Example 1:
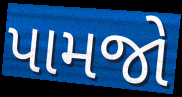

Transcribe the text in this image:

પામજો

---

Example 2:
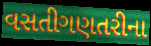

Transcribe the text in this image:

વસતીગણતરીના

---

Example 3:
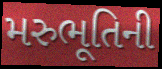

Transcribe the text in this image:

મરુભૂતિની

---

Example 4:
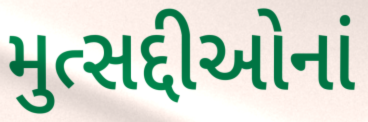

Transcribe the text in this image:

મુત્સદ્દીઓનાં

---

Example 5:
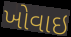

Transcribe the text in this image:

ખોવાઇ